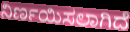
ನಿರ್ಣಯಿಸಲಾಗಿದೆ